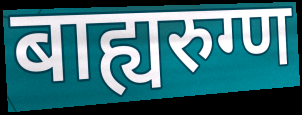
बाह्यरुग्ण